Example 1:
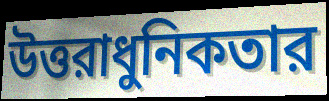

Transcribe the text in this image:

উত্তরাধুনিকতার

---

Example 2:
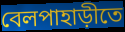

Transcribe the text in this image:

বেলপাহাড়ীতে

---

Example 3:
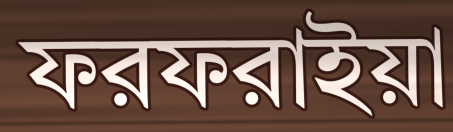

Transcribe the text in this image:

ফরফরাইয়া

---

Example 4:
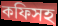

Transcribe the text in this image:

কফিসহ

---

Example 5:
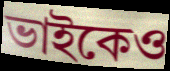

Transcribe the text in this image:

ভাইকেও